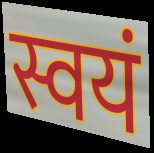
स्वयं